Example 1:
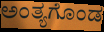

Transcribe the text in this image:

ಅಂತ್ಯಗೊಂಡ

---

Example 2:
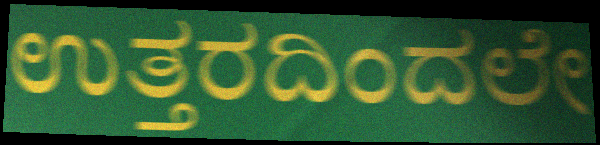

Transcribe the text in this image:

ಉತ್ತರದಿಂದಲೇ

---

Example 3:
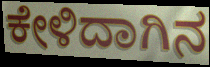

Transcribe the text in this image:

ಕೇಳಿದಾಗಿನ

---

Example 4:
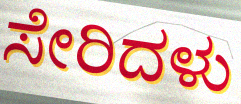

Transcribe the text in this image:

ಸೇರಿದಳು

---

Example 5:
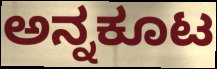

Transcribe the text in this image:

ಅನ್ನಕೂಟ